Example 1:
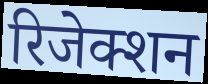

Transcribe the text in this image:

रिजेक्शन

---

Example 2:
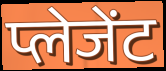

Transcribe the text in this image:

प्लेजेंट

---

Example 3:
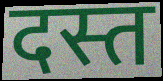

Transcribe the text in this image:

दस्त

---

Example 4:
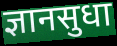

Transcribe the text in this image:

ज्ञानसुधा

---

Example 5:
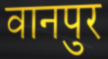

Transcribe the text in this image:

वानपुर